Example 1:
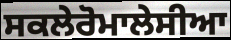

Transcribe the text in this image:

ਸਕਲੇਰੋਮਾਲੇਸੀਆ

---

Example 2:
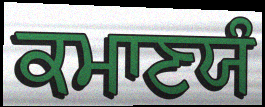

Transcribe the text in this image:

ਕਮਾਣਯੰ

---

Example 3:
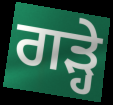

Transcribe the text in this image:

ਗੜ੍ਹੇ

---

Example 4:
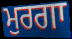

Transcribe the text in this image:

ਮੁਰਗਾ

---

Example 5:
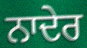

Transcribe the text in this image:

ਨਾਦੇਰ